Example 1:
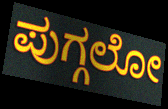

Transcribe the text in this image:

ಪುಗ್ಗಲೋ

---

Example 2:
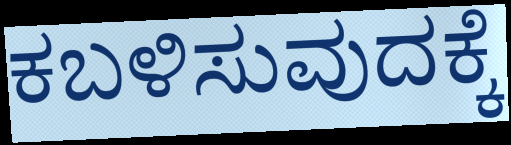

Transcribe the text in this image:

ಕಬಳಿಸುವುದಕ್ಕೆ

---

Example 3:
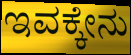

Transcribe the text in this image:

ಇವಕ್ಕೇನು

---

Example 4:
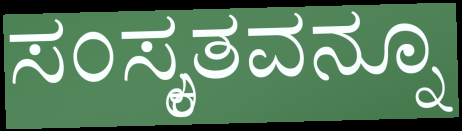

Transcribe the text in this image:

ಸಂಸ್ಕೃತವನ್ನೂ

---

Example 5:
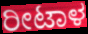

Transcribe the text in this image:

ರೀಟಾಳ